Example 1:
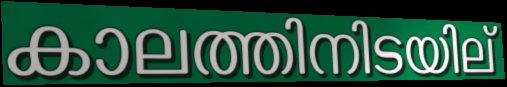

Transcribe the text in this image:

കാലത്തിനിടയില്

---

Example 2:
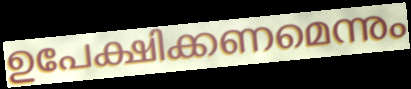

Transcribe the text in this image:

ഉപേക്ഷിക്കണമെന്നും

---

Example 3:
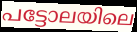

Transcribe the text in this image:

പട്ടോലയിലെ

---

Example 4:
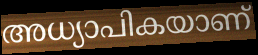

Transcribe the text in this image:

അധ്യാപികയാണ്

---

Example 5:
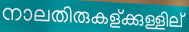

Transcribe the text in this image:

നാലതിരുകള്ക്കുള്ളില്